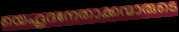
യെഹൂദനേതാക്കന്മാരുടെ